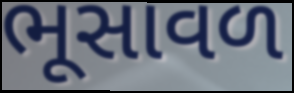
ભૂસાવળ